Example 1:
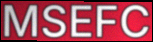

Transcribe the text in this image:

MSEFC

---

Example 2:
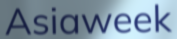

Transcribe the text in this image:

Asiaweek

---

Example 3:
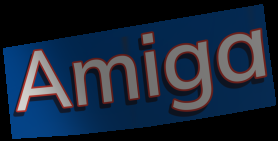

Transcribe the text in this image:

Amiga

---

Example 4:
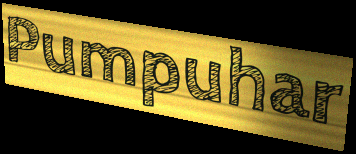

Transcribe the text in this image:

Pumpuhar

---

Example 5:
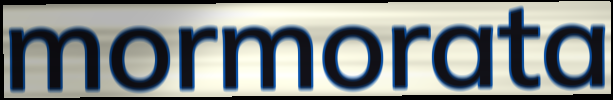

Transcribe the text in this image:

mormorata